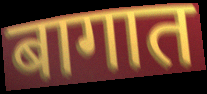
बागात